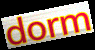
dorm